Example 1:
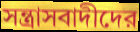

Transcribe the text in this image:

সন্ত্রাসবাদীদের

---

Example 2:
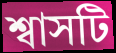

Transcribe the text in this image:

শ্বাসটি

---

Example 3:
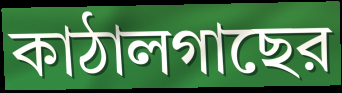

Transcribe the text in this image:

কাঠালগাছের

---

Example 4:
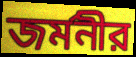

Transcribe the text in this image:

জর্মনীর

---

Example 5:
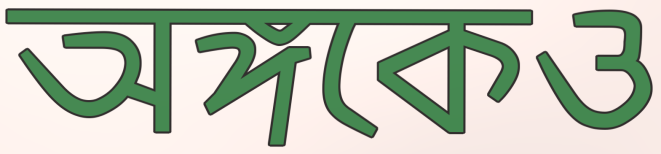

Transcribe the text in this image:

অঙ্গকেও